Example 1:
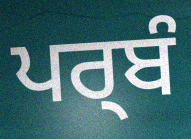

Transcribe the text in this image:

ਪਰ੍ਬੰ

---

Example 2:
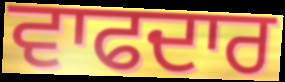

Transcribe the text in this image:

ਵਾਫਦਾਰ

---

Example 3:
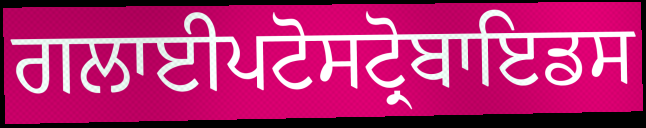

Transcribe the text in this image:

ਗਲਾਈਪਟੋਸਟ੍ਰੋਬਾਇਡਸ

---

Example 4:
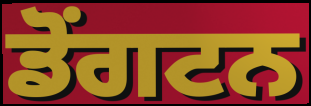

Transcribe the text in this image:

ਡੋਂਗਟਨ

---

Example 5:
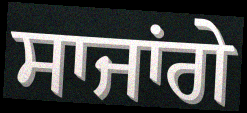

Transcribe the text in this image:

ਸਾਜਾਂਗੇ